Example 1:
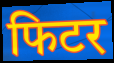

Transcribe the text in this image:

फिटर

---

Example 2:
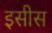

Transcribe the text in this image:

इसीस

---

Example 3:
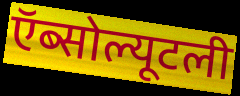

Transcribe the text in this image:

ऍब्सोल्यूटली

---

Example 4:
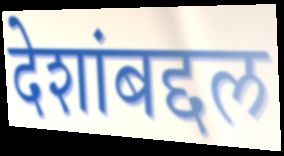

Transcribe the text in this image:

देशांबद्दल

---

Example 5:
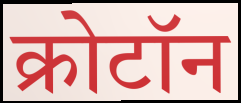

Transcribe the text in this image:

क्रोटॉन